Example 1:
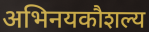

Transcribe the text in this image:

अभिनयकौशल्य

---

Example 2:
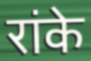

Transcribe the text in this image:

रांके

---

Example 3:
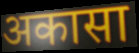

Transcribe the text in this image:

अकासा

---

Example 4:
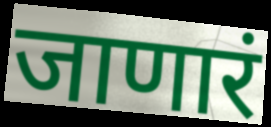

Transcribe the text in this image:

जाणारं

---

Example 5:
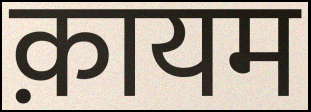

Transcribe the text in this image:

क़ायम